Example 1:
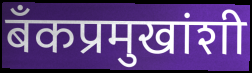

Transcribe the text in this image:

बँकप्रमुखांशी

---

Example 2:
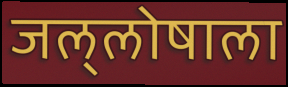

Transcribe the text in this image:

जल्लोषाला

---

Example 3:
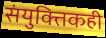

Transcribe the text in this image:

संयुक्तिकही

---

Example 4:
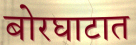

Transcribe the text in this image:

बोरघाटात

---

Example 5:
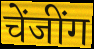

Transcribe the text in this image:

चेंजींग